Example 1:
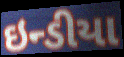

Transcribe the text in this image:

ઇન્ડીયા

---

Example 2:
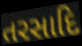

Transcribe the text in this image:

તરસાદિ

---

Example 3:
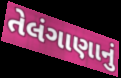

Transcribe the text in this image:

તેલંગાણાનું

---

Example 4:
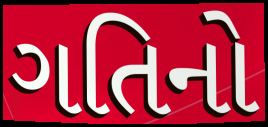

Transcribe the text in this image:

ગતિનો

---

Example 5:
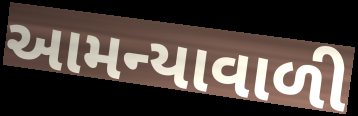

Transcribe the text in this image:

આમન્યાવાળી